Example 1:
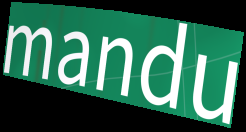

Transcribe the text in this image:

mandu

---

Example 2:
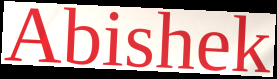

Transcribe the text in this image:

Abishek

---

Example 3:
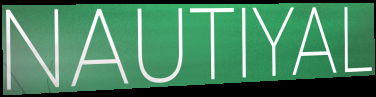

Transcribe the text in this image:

NAUTIYAL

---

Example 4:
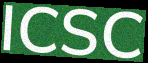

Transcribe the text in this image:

ICSC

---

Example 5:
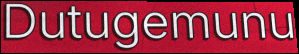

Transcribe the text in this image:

Dutugemunu